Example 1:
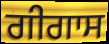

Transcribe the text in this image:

ਗੀਗਾਸ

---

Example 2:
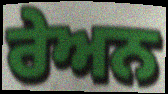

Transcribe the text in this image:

ਰੇਅਨ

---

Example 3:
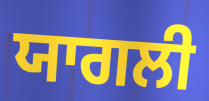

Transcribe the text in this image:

ਯਾਗਲੀ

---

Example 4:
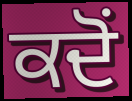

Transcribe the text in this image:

ਕਦੋਂ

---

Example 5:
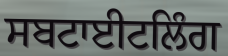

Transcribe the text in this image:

ਸਬਟਾਈਟਲਿੰਗ